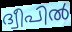
ദ്വീപിൽ